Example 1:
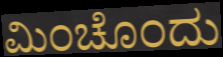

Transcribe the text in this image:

ಮಿಂಚೊಂದು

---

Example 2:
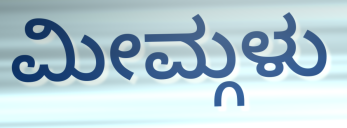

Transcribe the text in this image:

ಮೀಮ್ಗಳು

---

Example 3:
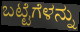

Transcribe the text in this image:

ಬಟ್ಟೆಗೆಳನ್ನು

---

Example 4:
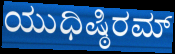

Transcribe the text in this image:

ಯುಧಿಷ್ಠಿರಮ್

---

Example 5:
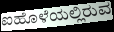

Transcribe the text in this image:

ಐಹೊಳೆಯಲ್ಲಿರುವ